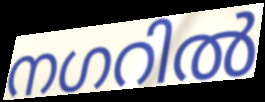
നഗറിൽ